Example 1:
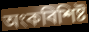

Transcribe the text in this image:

অংকবিশিষ্ট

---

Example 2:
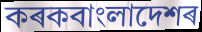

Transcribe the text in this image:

কৰকবাংলাদেশৰ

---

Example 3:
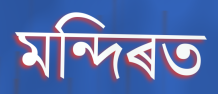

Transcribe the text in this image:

মন্দিৰত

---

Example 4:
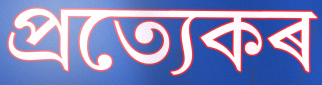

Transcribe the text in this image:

প্ৰত্যেকৰ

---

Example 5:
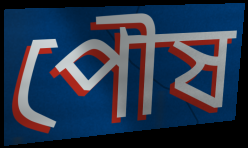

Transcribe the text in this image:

পৌষ